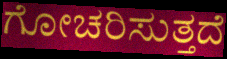
ಗೋಚರಿಸುತ್ತದೆ